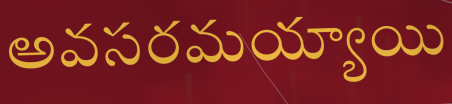
అవసరమయ్యాయి